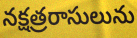
నక్షత్రరాసులును